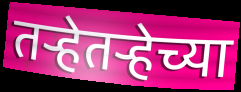
तर्‍हेतर्‍हेच्या